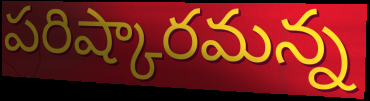
పరిష్కారమన్న